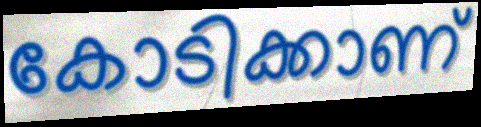
കോടിക്കാണ്